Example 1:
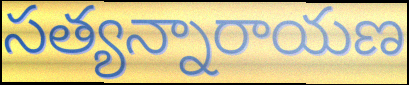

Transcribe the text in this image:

సత్యన్నారాయణ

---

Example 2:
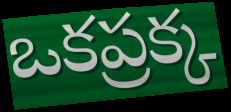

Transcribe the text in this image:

ఒకప్రక్క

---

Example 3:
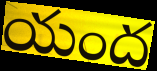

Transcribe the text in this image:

యంద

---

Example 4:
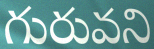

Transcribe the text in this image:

గురువని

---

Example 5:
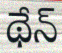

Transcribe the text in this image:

థేన్